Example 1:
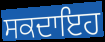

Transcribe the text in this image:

ਸਕਦਾਇਹ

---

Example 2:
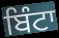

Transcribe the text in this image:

ਬਿੰਟਾ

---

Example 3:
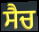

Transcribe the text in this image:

ਸੈਚ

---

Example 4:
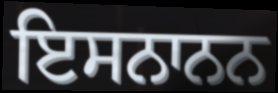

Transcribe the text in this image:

ਇਸਨਾਨਨ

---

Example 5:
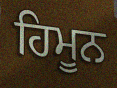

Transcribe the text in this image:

ਹਿਮੂਨ